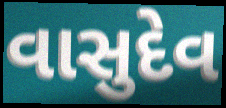
વાસુદેવ